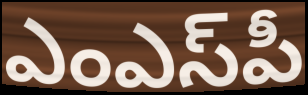
ఎంఎస్‌పీ